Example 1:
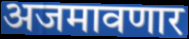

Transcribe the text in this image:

अजमावणार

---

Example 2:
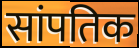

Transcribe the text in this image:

सांपतिक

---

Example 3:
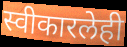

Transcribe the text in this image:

स्वीकारलेही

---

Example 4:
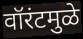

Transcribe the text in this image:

वॉरंटमुळे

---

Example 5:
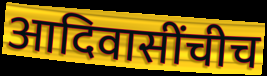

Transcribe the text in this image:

आदिवासींचीच